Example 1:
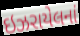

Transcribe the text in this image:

ઇઝરાયેલનાં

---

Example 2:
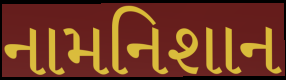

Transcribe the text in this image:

નામનિશાન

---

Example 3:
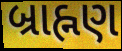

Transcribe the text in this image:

બ્રાહ્નણ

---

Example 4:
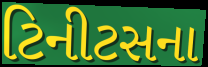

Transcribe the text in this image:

ટિનીટસના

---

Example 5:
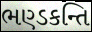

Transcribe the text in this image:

ભણ્ડકન્તિ